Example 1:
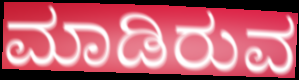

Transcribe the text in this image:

ಮಾಡಿರುವ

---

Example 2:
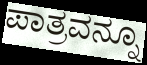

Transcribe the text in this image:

ಪಾತ್ರವನ್ನೂ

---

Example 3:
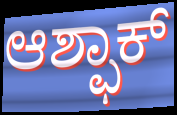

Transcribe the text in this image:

ಆಶ್ಫಾಕ್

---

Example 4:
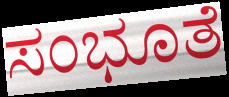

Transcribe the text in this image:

ಸಂಭೂತೆ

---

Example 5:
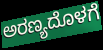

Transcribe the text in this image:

ಅರಣ್ಯದೊಳಗೆ